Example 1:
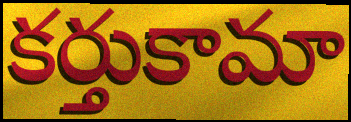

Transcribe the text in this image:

కర్తుకామా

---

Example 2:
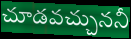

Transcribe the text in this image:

చూడవచ్చుననీ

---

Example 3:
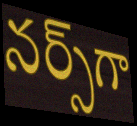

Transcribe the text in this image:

నర్స్‌గా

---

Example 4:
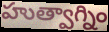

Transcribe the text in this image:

హుత్వాగ్నిం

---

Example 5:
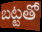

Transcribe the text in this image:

బట్టతో